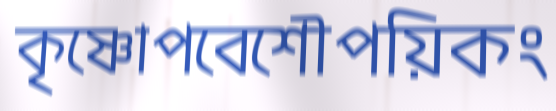
কৃষ্ণোপবেশৌপয়িকং